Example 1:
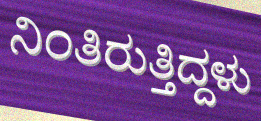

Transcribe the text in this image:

ನಿಂತಿರುತ್ತಿದ್ದಳು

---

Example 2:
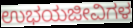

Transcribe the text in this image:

ಉಭಯಜೀವಿಗಳ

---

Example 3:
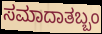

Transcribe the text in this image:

ಸಮಾದಾತಬ್ಬಂ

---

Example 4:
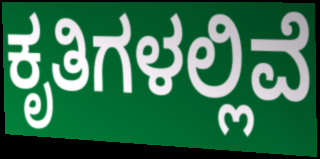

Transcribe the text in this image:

ಕೃತಿಗಳಲ್ಲಿವೆ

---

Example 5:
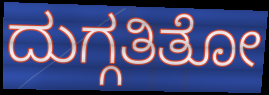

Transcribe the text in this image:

ದುಗ್ಗತಿತೋ